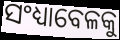
ସଂଧ୍ୟାବେଳକୁ